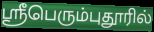
ஸ்ரீபெரும்புதூரில்